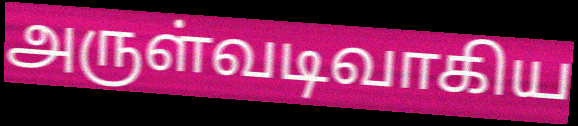
அருள்வடிவாகிய